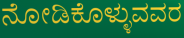
ನೋಡಿಕೊಳ್ಳುವವರ